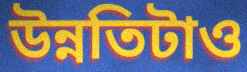
উন্নতিটাও